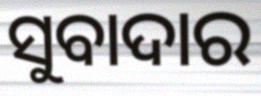
ସୁବାଦାର